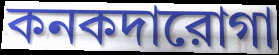
কনকদারোগা